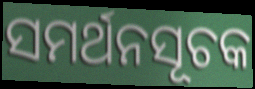
ସମର୍ଥନସୂଚକ